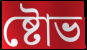
ষ্টোভ